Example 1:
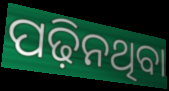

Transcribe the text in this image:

ପଢ଼ିନଥିବା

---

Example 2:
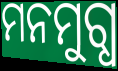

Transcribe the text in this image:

ମନମୁଗ୍ଧ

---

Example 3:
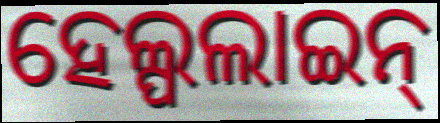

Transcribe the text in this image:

ହେଲ୍ପଲାଇନ୍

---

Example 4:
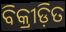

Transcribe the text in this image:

ବିକ୍ରୀଡ଼ିତ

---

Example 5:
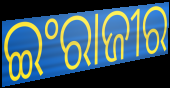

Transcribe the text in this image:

ଇଂରାଜୀର